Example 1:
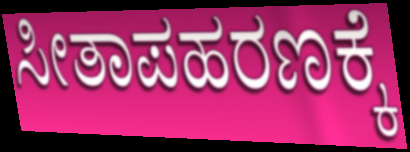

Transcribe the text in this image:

ಸೀತಾಪಹರಣಕ್ಕೆ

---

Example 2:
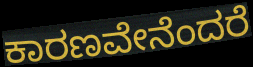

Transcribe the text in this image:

ಕಾರಣವೇನೆಂದರೆ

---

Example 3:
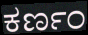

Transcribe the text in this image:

ಕರ್ಣಂ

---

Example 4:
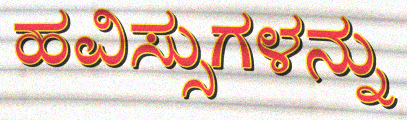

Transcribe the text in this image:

ಹವಿಸ್ಸುಗಳನ್ನು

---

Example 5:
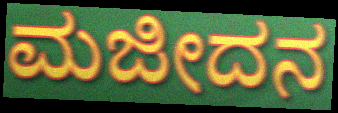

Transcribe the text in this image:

ಮಜೀದನ